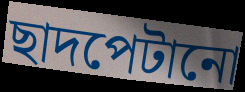
ছাদপেটানো